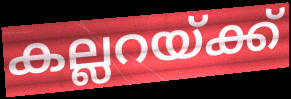
കല്ലറയ്ക്ക്